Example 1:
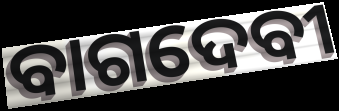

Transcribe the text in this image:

ବାଗଦେବୀ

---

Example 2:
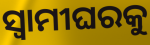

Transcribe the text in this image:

ସ୍ୱାମୀଘରକୁ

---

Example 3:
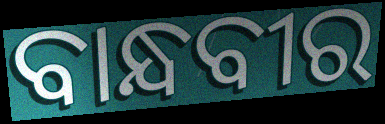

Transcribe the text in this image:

ବାନ୍ଧବୀର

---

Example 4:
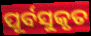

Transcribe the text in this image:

ପୂର୍ବସୁକୃତ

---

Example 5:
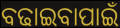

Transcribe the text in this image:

ବଢାଇବାପାଇଁ